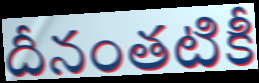
దీనంతటికీ